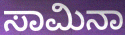
ಸಾಮಿನಾ